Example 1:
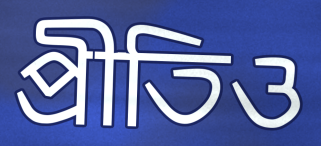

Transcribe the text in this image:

প্রীতিও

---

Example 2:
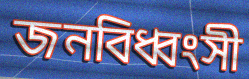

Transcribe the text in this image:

জনবিধ্বংসী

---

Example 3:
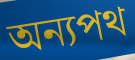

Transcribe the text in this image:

অন্যপথ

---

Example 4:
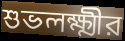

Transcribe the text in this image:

শুভলক্ষ্মীর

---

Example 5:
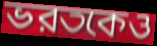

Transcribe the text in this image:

ভরতকেও